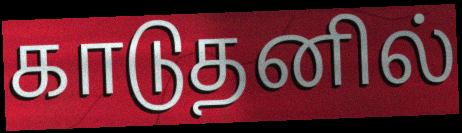
காடுதனில்